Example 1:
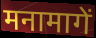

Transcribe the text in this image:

मनामागें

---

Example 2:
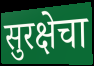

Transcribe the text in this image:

सुरक्षेचा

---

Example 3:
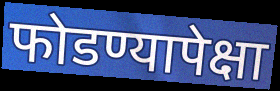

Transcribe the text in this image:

फोडण्यापेक्षा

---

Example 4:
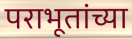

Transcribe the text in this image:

पराभूतांच्या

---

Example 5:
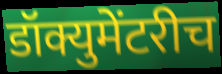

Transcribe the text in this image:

डॉक्युमेंटरीच